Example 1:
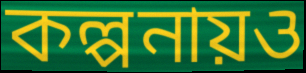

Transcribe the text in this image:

কল্পনায়ও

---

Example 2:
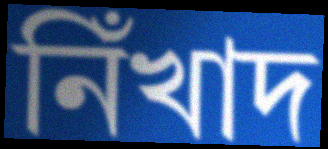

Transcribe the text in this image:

নিঁখাদ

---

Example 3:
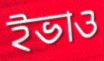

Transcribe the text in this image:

ইভাও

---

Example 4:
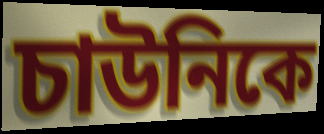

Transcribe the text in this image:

চাউনিকে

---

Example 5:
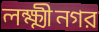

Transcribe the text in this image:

লক্ষ্মীনগর